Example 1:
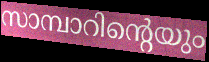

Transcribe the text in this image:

സാമ്പാറിന്റെയും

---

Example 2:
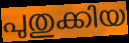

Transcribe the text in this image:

പുതുക്കിയ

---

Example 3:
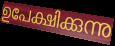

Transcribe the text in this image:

ഉപേക്ഷിക്കുന്നു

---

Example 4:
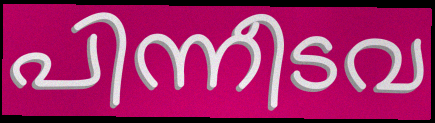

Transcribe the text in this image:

പിന്നീടവ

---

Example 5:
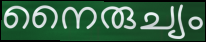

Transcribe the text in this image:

നൈരുച്യം